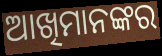
ଆଖିମାନଙ୍କର